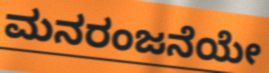
ಮನರಂಜನೆಯೇ